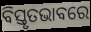
ବିସ୍ତୃତଭାବରେ